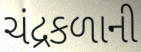
ચંદ્રકળાની